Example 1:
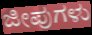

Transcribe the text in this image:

ಜೀಪುಗಳು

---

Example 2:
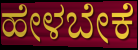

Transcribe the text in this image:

ಹೇಳಬೇಕೆ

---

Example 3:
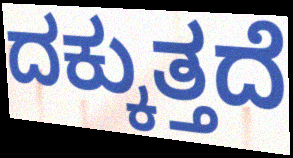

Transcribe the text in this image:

ದಕ್ಕುತ್ತದೆ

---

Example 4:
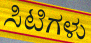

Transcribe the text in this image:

ಸಿಟಿಗಳು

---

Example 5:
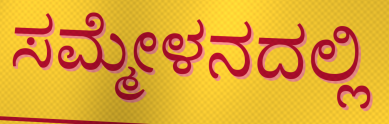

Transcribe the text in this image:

ಸಮ್ಮೇಳನದಲ್ಲಿ